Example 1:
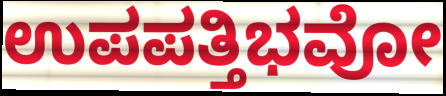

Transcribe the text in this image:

ಉಪಪತ್ತಿಭವೋ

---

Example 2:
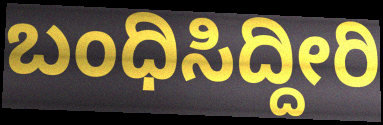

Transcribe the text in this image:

ಬಂಧಿಸಿದ್ದೀರಿ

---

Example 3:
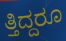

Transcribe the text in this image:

ತ್ತಿದ್ದರೂ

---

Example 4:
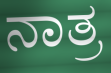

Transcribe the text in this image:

ನಾತ್ರ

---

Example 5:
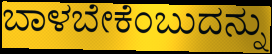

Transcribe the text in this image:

ಬಾಳಬೇಕೆಂಬುದನ್ನು